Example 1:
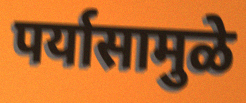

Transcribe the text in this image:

पर्यासामुळे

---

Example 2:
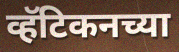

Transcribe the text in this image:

व्हॅटिकनच्या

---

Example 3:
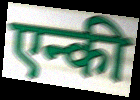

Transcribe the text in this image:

एन्की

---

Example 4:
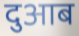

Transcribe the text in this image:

दुआब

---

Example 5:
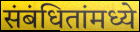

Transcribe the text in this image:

संबंधितांमध्ये